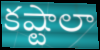
కష్టాలా